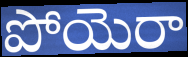
పోయెరా